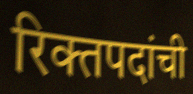
रिक्तपदांची